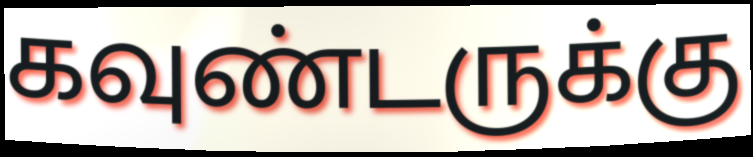
கவுண்டருக்கு